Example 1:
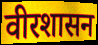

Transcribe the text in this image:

वीरशासन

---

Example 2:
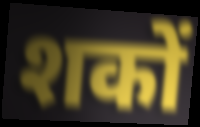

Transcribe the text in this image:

शकों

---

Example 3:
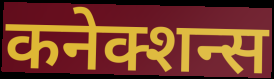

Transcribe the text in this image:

कनेक्शन्स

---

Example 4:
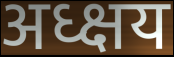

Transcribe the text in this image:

अध्क्षय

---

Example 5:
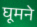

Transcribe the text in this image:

घूमने